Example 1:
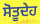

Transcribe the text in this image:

ਸੋਤੂਦੇਹ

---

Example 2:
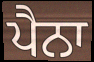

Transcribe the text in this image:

ਪੈਨਾ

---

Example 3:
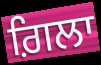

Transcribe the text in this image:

ਗ਼ਿਲਾ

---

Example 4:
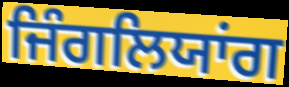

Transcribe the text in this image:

ਜਿੰਗਲਿਯਾਂਗ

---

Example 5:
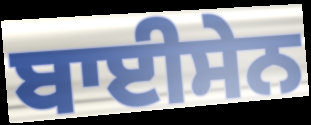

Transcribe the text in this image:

ਬਾਈਸੇਨ